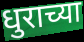
धुराच्या